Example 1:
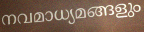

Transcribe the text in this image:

നവമാധ്യമങ്ങളും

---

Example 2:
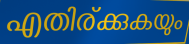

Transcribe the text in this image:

എതിര്ക്കുകയും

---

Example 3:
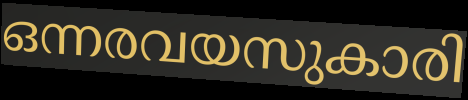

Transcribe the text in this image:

ഒന്നരവയസുകാരി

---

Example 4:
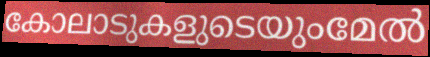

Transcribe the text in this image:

കോലാടുകളുടെയുംമേൽ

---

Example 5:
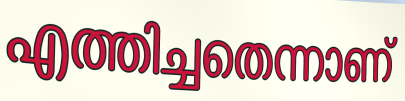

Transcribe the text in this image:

എത്തിച്ചതെന്നാണ്